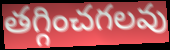
తగ్గించగలవు